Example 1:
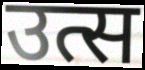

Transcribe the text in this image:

उत्स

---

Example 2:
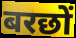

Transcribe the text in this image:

बरछों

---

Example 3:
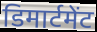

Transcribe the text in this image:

डिमार्टमेंट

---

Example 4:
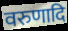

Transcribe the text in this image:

वरुणादि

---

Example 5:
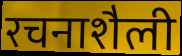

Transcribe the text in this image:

रचनाशैली